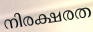
നിരക്ഷരത